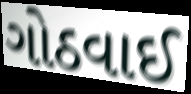
ગોઠવાઈ